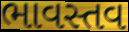
ભાવસ્તવ